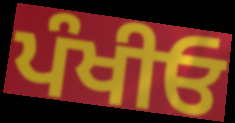
ਪੰਖੀਓ